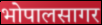
भोपालसागर